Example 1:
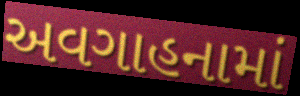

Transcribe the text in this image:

અવગાહનામાં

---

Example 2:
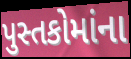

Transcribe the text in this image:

પુસ્તકોમાંના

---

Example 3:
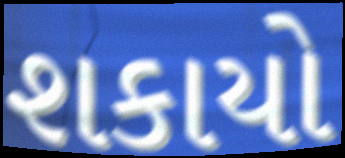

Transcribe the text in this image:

શકાયો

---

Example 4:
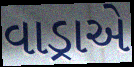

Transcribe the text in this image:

વાડ્રાએ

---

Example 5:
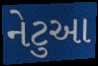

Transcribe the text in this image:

નેટુઆ